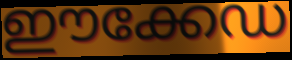
ഈക്കേഡ